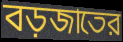
বড়জাতের